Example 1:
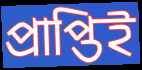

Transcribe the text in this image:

প্রাপ্তিই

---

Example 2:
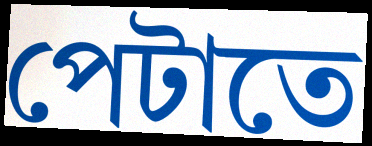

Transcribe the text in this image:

পেটাতে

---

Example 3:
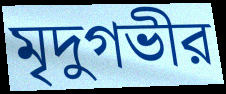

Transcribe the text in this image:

মৃদুগভীর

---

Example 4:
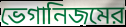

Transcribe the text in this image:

ভেগানিজমের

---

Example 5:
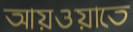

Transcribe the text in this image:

আয়ওয়াতে